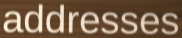
addresses